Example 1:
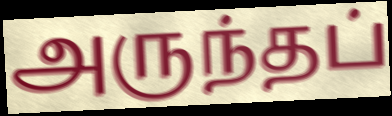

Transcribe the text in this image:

அருந்தப்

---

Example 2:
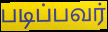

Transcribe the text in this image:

படிப்பவர்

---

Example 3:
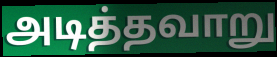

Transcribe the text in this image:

அடித்தவாறு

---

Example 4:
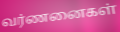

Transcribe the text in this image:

வர்ணனைகள்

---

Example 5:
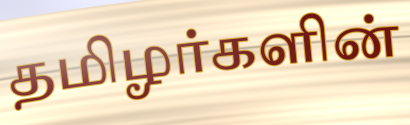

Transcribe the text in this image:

தமிழர்களின்